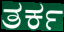
ತರ್ಕ